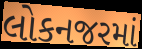
લોકનજરમાં